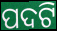
ପଦଟି